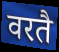
वरतै